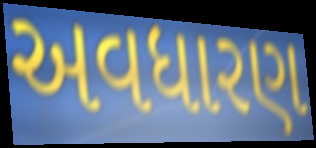
અવધારણ